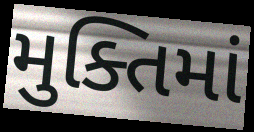
મુક્તિમાં